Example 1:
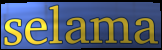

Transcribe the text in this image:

selama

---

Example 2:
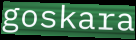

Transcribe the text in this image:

goskara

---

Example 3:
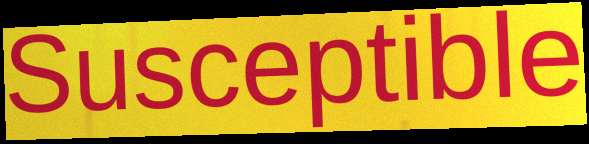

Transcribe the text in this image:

Susceptible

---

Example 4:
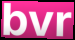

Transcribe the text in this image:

bvr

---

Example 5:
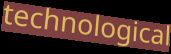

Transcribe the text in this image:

technological